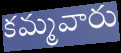
కమ్మవారు